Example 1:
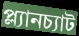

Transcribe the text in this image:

প্ল্যানচ্যাট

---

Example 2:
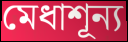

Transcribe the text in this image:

মেধাশূন্য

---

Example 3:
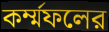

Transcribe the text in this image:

কর্ম্মফলের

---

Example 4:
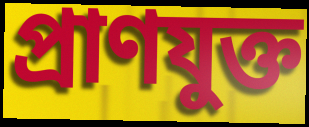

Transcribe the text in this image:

প্রাণযুক্ত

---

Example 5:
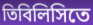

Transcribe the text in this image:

তিবিলিসিতে